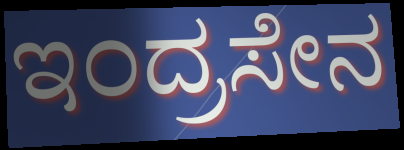
ಇಂದ್ರಸೇನ